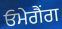
ਓਮੇਗੈਂਗ